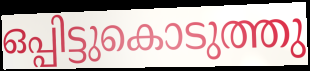
ഒപ്പിട്ടുകൊടുത്തു